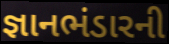
જ્ઞાનભંડારની